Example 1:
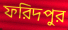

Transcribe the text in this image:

ফরিদপুর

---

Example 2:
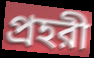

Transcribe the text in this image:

প্রহরী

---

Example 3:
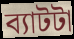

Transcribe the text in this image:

ব্যাটটা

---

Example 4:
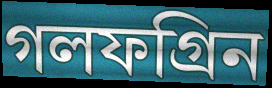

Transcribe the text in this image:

গলফগ্রিন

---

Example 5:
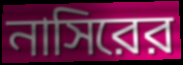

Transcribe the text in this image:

নাসিরের